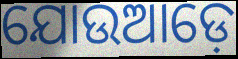
ଯୋଉଆଡ଼େ